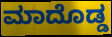
ಮಾದೊಡ್ಡ